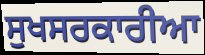
ਸੁਖਸਰਕਾਰੀਆ